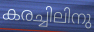
കരച്ചിലിനു